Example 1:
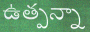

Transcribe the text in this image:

ఉత్పన్నా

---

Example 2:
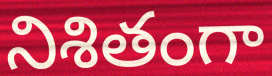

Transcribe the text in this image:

నిశితంగా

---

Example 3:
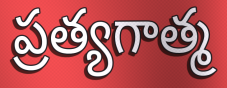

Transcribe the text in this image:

ప్రత్యగాత్మ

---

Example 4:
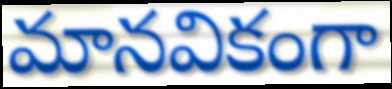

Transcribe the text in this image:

మానవికంగా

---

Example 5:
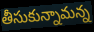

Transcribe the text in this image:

తీసుకున్నామన్న